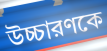
উচ্চারণকে